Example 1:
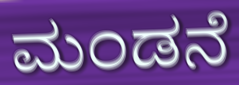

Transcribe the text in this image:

ಮಂಡನೆ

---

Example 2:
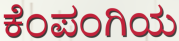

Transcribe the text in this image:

ಕೆಂಪಂಗಿಯ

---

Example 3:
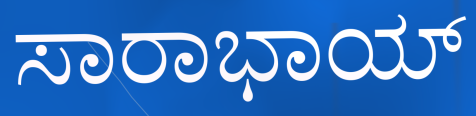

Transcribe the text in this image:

ಸಾರಾಭಾಯ್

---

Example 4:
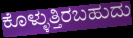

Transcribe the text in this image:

ಕೊಳ್ಳುತ್ತಿರಬಹುದು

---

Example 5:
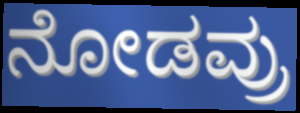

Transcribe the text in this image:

ನೋಡವ್ರು